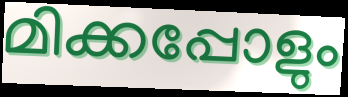
മിക്കപ്പോളും